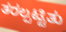
ತರಲ್ಪಟ್ಟಿತು